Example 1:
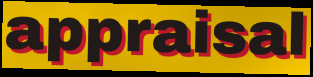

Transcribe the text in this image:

appraisal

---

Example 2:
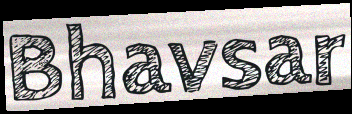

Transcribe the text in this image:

Bhavsar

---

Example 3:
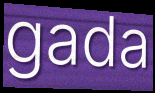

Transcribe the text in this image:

gada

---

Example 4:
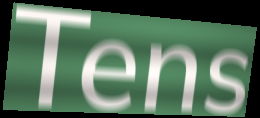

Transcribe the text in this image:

Tens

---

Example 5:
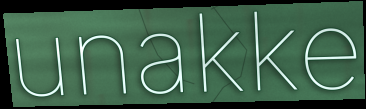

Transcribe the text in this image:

unakke